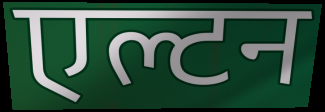
एल्टन